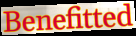
Benefitted